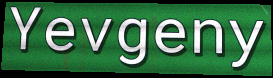
Yevgeny